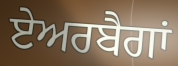
ਏਅਰਬੈਗਾਂ